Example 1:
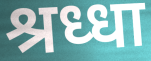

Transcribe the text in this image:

श्रध्धा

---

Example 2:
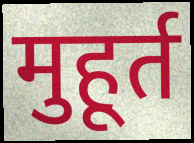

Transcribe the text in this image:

मुहूर्त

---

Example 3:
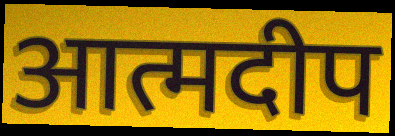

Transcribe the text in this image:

आत्मदीप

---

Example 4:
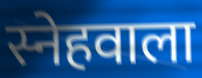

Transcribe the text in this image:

स्नेहवाला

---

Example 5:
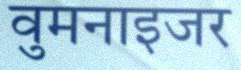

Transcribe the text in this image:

वुमनाइजर